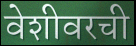
वेशीवरची